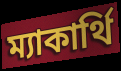
ম্যাকার্থি